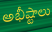
అభీష్టాలు